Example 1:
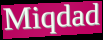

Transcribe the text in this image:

Miqdad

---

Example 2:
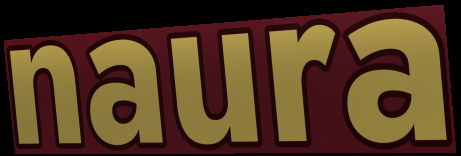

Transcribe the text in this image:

naura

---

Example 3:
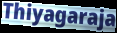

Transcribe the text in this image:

Thiyagaraja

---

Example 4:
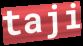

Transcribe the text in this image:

taji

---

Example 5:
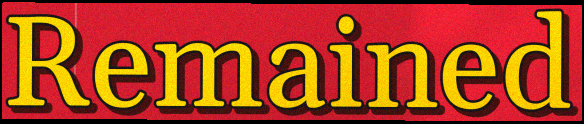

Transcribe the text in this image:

Remained